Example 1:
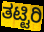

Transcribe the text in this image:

ತಟ್ಟಿರಿ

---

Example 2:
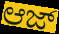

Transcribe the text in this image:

ಆಜ್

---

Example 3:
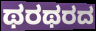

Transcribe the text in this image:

ಥರಥರದ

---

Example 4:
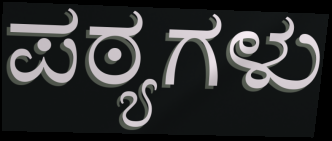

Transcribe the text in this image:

ಪಠ್ಯಗಳು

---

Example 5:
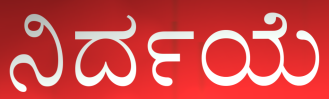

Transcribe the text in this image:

ನಿರ್ದಯೆ